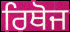
ਰਿਥੋਜ